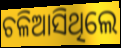
ଚଳିଆସିଥିଲେ